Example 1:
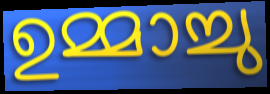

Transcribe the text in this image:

ഉമ്മാച്ചു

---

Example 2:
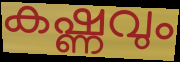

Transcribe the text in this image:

കഷ്ണവും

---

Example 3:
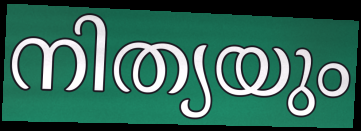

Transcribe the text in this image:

നിത്യയും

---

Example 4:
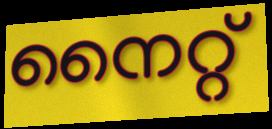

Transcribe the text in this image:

നൈറ്റ്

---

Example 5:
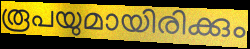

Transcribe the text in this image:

രൂപയുമായിരിക്കും